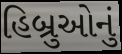
હિબ્રુઓનું